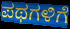
ಪಥಗಳಿಗೆ